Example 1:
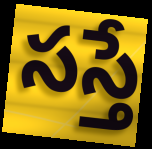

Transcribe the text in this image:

సస్తే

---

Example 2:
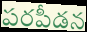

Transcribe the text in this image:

పరపీడన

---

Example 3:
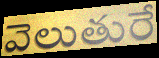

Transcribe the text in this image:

వెలుతురే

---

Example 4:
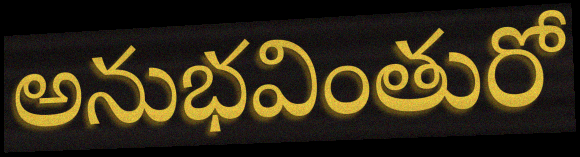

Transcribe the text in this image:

అనుభవింతురో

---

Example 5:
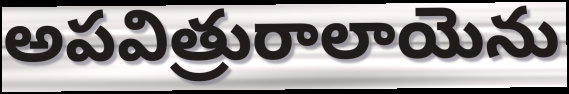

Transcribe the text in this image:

అపవిత్రురాలాయెను